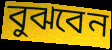
বুঝবেন